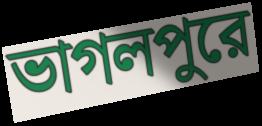
ভাগলপুরে